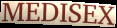
MEDISEX